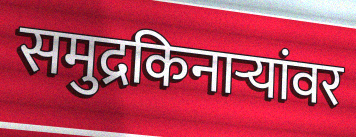
समुद्रकिनाऱ्यांवर